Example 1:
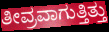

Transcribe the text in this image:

ತೀವ್ರವಾಗುತ್ತಿತ್ತು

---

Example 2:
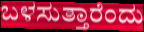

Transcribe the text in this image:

ಬಳಸುತ್ತಾರೆಂದು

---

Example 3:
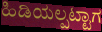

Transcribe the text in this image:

ಹಿಡಿಯಲ್ಪಟ್ಟಾಗ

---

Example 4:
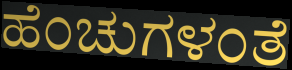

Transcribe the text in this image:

ಹೆಂಚುಗಳಂತೆ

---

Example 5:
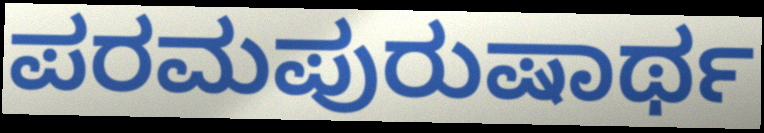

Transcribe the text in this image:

ಪರಮಪುರುಷಾರ್ಥ